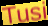
Tusi